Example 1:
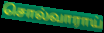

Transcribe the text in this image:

சொல்வாராய்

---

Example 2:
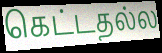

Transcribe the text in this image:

கெட்டதல்ல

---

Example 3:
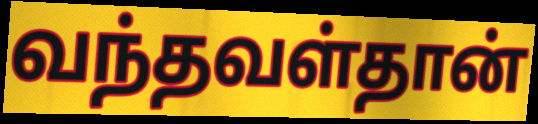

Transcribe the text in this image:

வந்தவள்தான்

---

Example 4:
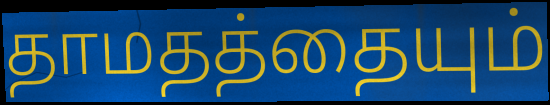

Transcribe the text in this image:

தாமதத்தையும்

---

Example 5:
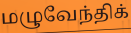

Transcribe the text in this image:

மழுவேந்திக்